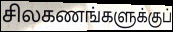
சிலகணங்களுக்குப்